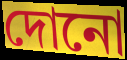
দোনো